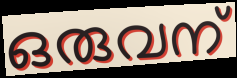
ഒരുവന്